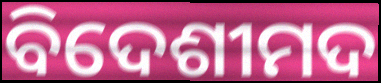
ବିଦେଶୀମଦ